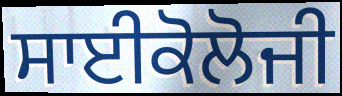
ਸਾਈਕੋਲੋਜੀ